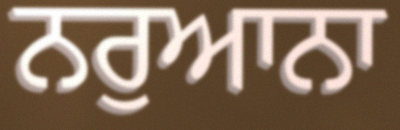
ਨਰੁਆਨਾ